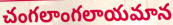
చంగలాంగలాయమాన